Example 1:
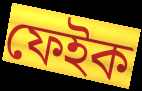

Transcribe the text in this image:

ফেইক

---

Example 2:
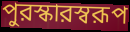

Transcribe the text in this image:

পুরস্কারস্বরূপ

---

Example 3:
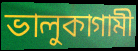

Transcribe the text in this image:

ভালুকাগামী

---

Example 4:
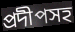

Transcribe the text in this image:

প্রদীপসহ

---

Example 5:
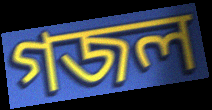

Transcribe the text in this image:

গজল